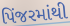
પિંજરમાંથી